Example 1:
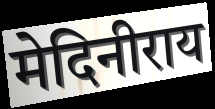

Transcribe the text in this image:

मेदिनीराय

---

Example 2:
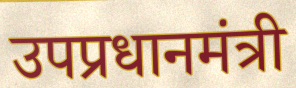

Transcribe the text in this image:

उपप्रधानमंत्री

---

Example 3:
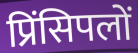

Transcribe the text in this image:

प्रिंसिपलों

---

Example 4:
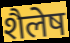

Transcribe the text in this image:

शैलेष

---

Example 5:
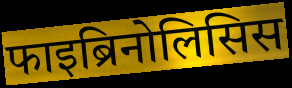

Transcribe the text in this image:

फाइब्रिनोलिसिस